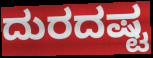
ದುರದಷ್ಟ